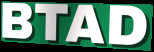
BTAD